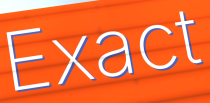
Exact